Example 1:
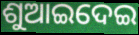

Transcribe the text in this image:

ଶୁଆଇଦେଇ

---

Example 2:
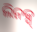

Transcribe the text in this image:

ଲିନକ୍ସ୍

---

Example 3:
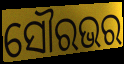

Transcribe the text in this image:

ସୌରଭର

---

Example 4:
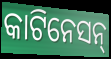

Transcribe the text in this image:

କାଟିନେସନ୍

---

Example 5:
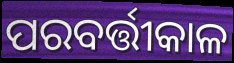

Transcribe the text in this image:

ପରବର୍ତ୍ତୀକାଳ